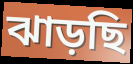
ঝাড়ছি